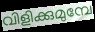
വിളിക്കുമുമ്പേ